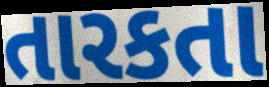
તારકતા